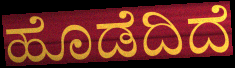
ಹೊಡೆದಿದೆ